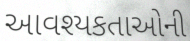
આવશ્યકતાઓની